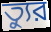
ত্যুর